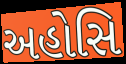
અહોસિ